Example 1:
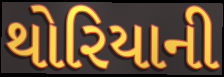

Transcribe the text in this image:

થોરિયાની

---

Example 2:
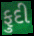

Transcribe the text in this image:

ફુદી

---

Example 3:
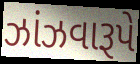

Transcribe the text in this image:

ઝાંઝવારૂપે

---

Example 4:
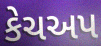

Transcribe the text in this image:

કેચઅપ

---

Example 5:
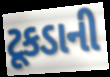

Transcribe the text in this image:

ટૂકડાની